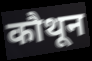
कौथून